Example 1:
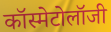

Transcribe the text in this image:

कॉस्मेटोलॉजी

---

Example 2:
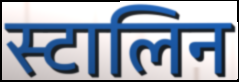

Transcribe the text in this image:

स्टालिन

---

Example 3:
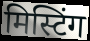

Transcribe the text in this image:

मिस्टिंग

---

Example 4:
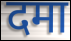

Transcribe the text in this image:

दमा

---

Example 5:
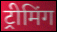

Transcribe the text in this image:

ट्रीमिंग